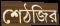
শেঠজির